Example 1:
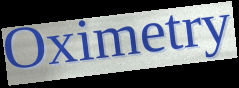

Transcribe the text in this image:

Oximetry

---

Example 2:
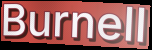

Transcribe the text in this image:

Burnell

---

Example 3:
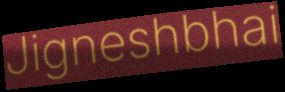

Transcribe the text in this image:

Jigneshbhai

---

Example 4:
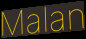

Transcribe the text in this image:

Malan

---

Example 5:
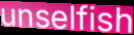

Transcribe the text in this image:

unselfish